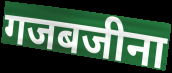
गजबजीना